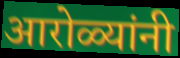
आरोळ्यांनी